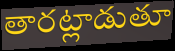
తారట్లాడుతూ